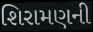
શિરામણની